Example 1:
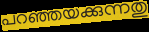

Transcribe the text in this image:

പറഞ്ഞയക്കുന്നതു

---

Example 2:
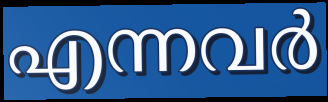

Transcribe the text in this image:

എന്നവർ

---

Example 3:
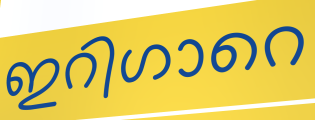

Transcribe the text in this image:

ഇറിഗാറെ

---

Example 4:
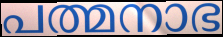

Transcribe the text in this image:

പത്മനാഭ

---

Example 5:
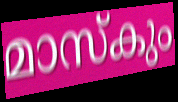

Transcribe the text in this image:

മാസ്കും